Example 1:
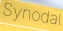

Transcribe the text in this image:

Synodal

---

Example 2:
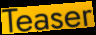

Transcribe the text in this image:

Teaser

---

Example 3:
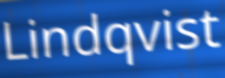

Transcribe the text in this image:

Lindqvist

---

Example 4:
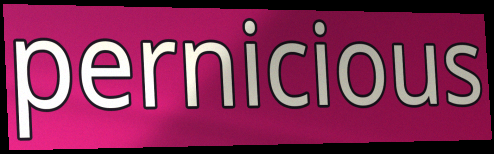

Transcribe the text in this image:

pernicious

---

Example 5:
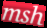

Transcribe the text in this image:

msh